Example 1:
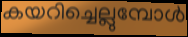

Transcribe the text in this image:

കയറിച്ചെല്ലുമ്പോൾ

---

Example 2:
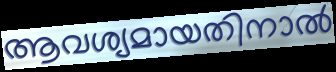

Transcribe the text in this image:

ആവശ്യമായതിനാൽ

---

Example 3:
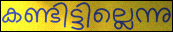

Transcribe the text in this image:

കണ്ടിട്ടില്ലെന്നു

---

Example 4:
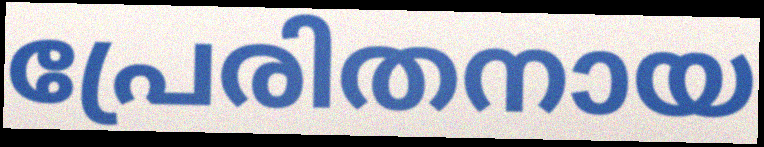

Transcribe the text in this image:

പ്രേരിതനായ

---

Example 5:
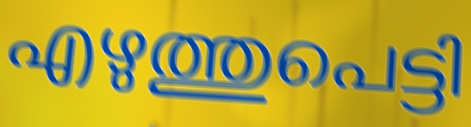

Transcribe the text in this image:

എഴുത്തുപെട്ടി